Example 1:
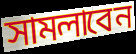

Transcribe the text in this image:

সামলাবেন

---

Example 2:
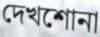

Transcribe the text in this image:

দেখশোনা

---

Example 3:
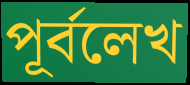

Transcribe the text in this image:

পূর্বলেখ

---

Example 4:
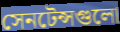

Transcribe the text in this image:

সেনটেন্সগুলো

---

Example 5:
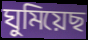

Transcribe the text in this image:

ঘুমিয়েছ